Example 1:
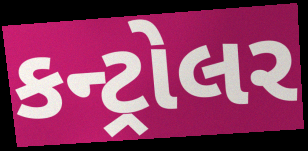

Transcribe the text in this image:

કન્ટ્રોલર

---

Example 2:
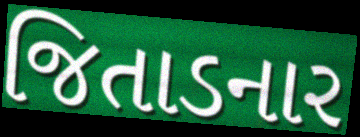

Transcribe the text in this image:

જિતાડનાર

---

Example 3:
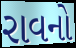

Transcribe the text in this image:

રાવનો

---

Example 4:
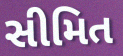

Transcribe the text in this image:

સીમિત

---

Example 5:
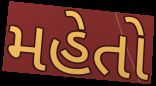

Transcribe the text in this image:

મહેતો